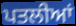
ਪਤਲੀਆਂ